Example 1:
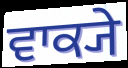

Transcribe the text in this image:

ਵਾਕ੍ਯੇ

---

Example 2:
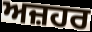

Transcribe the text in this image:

ਅਜ਼ਹਰ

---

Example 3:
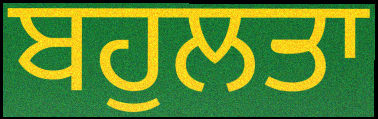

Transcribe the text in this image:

ਬਹੁਲਤਾ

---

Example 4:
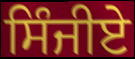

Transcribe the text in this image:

ਸਿੰਜੀਏ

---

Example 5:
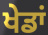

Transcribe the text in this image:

ਖੇਡਾਂ